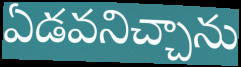
ఏడవనిచ్చాను